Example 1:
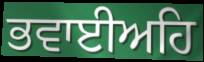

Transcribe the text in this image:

ਭਵਾਈਅਹਿ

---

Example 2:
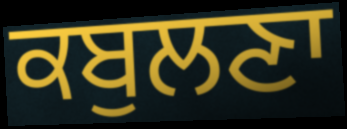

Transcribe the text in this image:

ਕਬੁਲਣਾ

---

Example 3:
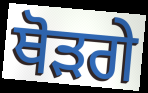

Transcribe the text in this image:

ਥੋੜਗੇ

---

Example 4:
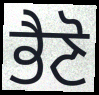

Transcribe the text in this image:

ਭੈਣੋ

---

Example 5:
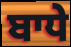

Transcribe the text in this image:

ਬਾਧੇ